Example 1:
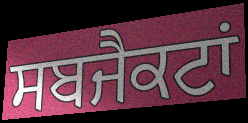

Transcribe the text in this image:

ਸਬਜੈਕਟਾਂ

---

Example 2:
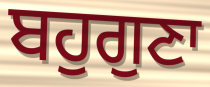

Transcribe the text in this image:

ਬਹੁਗੁਣਾ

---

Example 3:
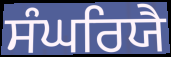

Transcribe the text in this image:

ਸੰਘਰਿਯੈ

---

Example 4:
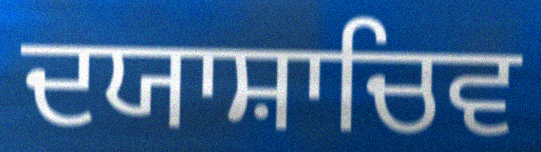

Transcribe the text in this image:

ਦਯਾਸ਼ਾਚਿਵ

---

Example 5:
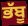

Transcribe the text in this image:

ਭੱਬੂ